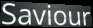
Saviour